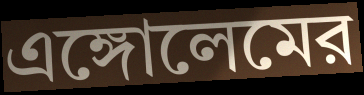
এঙ্গোলেমের